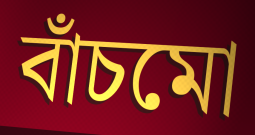
বাঁচমো